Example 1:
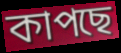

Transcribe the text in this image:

কাপছে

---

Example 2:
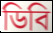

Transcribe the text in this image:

ডিবি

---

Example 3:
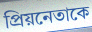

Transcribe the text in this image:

প্রিয়নেতাকে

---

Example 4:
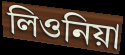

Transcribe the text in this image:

লিওনিয়া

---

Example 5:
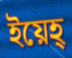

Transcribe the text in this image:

ইয়েহ্